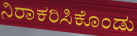
ನಿರಾಕರಿಸಿಕೊಂಡು